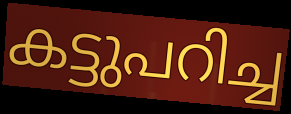
കട്ടുപറിച്ച